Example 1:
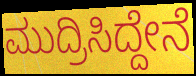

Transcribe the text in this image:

ಮುದ್ರಿಸಿದ್ದೇನೆ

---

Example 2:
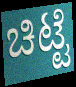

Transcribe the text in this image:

ಚಿಟ್ಟೆ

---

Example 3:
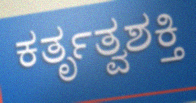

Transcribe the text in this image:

ಕರ್ತೃತ್ವಶಕ್ತಿ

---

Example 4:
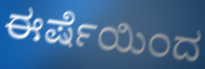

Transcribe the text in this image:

ಈರ್ಷೆಯಿಂದ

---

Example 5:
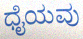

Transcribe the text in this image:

ಧೈಯವು